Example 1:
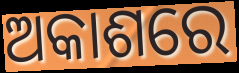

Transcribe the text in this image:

ଅକାଶରେ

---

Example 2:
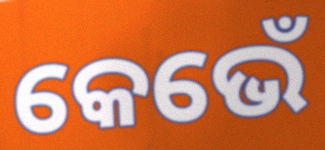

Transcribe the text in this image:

କେଭେଁ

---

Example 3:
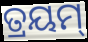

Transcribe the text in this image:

ତ୍ରୟମ୍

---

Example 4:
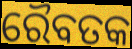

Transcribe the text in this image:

ରୈବତକ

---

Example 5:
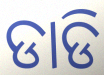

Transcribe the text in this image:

ଡାଡି